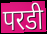
परडी